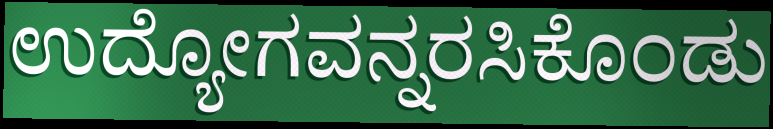
ಉದ್ಯೋಗವನ್ನರಸಿಕೊಂಡು